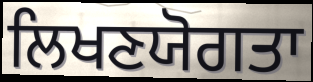
ਲਿਖਣਯੋਗਤਾ